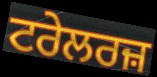
ਟਰੇਲਰਜ਼